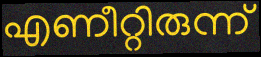
എണീറ്റിരുന്ന്